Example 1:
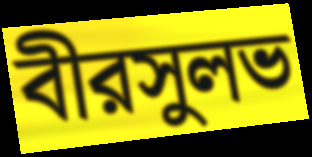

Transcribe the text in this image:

বীরসুলভ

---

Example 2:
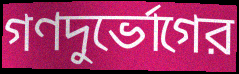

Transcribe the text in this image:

গণদুর্ভোগের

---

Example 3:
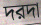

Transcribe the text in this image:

দরদা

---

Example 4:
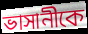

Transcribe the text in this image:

ভাসানীকে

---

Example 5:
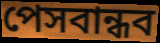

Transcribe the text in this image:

পেসবান্ধব